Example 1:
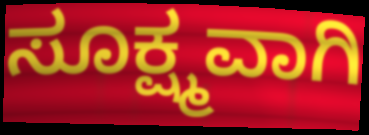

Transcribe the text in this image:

ಸೂಕ್ಷ್ಮವಾಗಿ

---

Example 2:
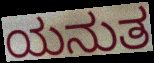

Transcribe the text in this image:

ಯನುತ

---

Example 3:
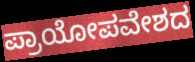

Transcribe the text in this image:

ಪ್ರಾಯೋಪವೇಶದ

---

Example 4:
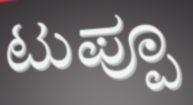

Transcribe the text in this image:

ಟುಪ್ಪೂ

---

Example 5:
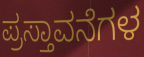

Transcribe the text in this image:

ಪ್ರಸ್ತಾವನೆಗಳ